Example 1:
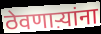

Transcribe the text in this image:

ठेवणाऱ्‍यांना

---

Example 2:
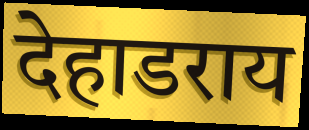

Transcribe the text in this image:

देहाडराय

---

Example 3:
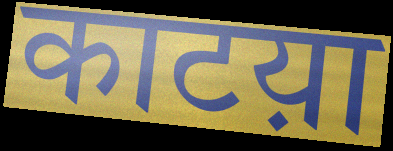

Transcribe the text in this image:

काटय़ा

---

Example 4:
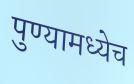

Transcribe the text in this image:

पुण्यामध्येच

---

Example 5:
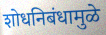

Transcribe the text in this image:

शोधनिबंधामुळे